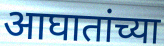
आघातांच्या